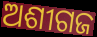
ଅଶୀଗଜ